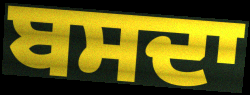
ਬਸਦਾ